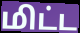
மிட்ட